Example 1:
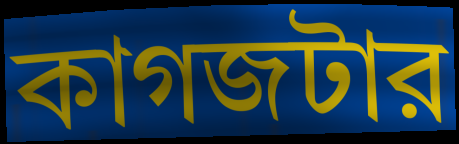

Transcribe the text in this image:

কাগজটার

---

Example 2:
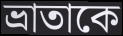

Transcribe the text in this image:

ভ্রাতাকে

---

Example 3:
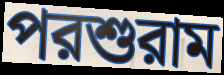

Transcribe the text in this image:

পরশুরাম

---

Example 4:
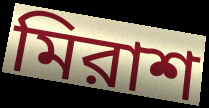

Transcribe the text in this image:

মিরাশ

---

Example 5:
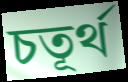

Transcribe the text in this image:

চতূর্থ